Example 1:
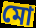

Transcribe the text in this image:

মো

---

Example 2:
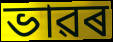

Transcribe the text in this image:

ভাৱৰ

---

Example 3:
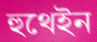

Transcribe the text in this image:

হুথেইন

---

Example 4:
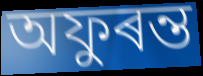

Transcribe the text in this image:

অফুৰন্ত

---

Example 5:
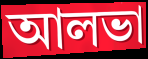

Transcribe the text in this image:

আলভা